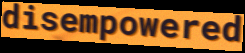
disempowered